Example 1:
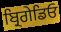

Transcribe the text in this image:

ਬ੍ਰਿਗੇਡਿਓ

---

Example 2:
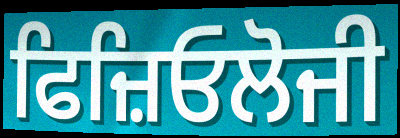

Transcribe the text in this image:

ਫਿਜ਼ਿਓਲੋਜੀ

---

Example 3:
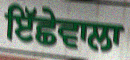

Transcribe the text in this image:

ਇੱਛੇਵਾਲਾ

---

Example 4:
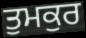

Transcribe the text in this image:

ਤੁਮਕੁਰ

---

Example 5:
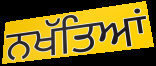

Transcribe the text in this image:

ਨਖੱਤਿਆਂ